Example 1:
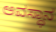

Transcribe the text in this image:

ಅವಸ್ಥಾನ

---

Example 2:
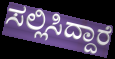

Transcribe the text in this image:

ಸಲ್ಲಿಸಿದ್ದಾರೆ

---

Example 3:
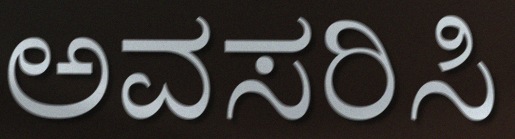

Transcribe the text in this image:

ಅವಸರಿಸಿ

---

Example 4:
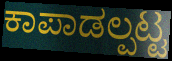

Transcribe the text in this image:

ಕಾಪಾಡಲ್ಪಟ್ಟ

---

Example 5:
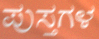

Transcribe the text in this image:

ಪುಸ್ತಗಳ